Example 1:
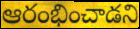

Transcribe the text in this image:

ఆరంభించాడని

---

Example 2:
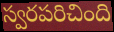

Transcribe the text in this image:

స్వరపరిచింది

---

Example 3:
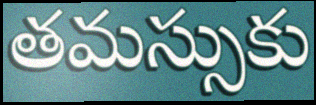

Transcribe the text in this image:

తమస్సుకు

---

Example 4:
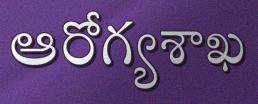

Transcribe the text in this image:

ఆరోగ్యశాఖ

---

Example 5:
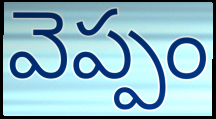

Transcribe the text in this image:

వెప్పం